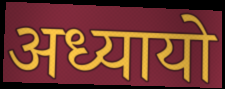
अध्यायो